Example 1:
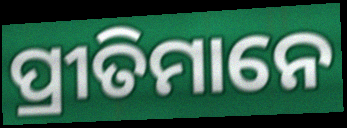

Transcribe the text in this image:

ପ୍ରୀତିମାନେ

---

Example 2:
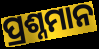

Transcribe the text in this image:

ପ୍ରଶ୍ନମାନ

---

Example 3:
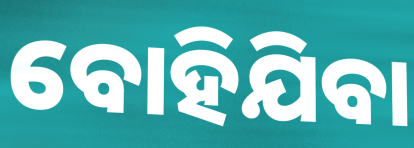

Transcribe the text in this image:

ବୋହିଯିବା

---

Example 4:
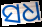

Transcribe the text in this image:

ସଧ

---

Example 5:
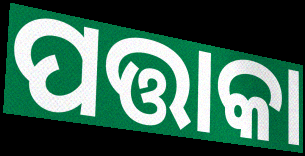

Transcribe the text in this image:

ପତ୍ତାକା